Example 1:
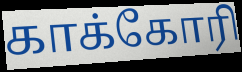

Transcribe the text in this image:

காக்கோரி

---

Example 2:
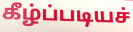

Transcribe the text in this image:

கீழ்ப்படியச்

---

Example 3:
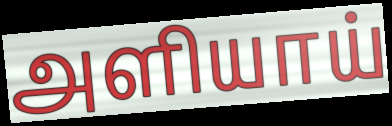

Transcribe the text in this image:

அளியாய்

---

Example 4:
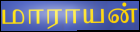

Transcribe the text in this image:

மாராயன்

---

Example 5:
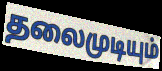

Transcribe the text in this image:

தலைமுடியும்